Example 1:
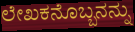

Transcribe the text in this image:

ಲೇಖಕನೊಬ್ಬನನ್ನು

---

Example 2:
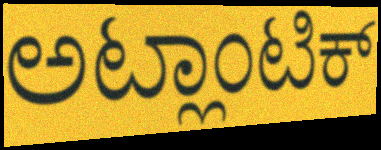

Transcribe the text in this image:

ಅಟ್ಲಾಂಟಿಕ್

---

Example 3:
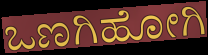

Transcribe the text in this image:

ಒಣಗಿಹೋಗಿ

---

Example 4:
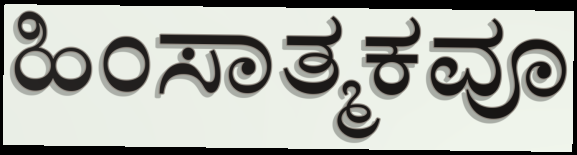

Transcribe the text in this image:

ಹಿಂಸಾತ್ಮಕವೂ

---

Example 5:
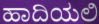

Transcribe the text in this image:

ಹಾದಿಯಲಿ